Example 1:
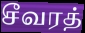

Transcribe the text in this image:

சீவரத்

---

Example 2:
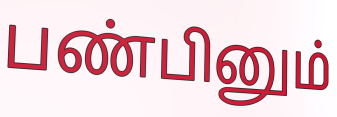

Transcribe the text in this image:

பண்பினும்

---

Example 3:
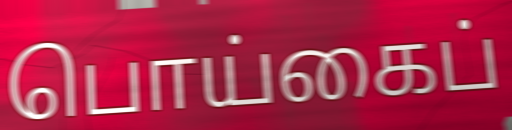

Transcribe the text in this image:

பொய்கைப்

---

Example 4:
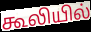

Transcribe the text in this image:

கூலியில்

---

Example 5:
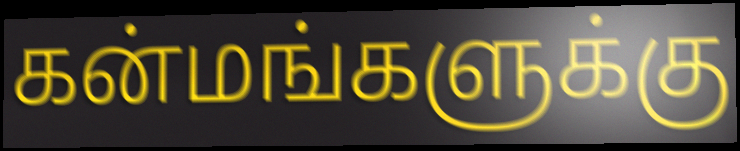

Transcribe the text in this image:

கன்மங்களுக்கு